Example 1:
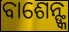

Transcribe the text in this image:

ବାଶେନ୍ଙ୍କ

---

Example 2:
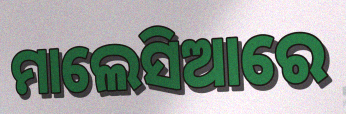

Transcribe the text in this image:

ମାଲେସିଆରେ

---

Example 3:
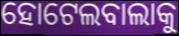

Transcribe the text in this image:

ହୋଟେଲବାଲାକୁ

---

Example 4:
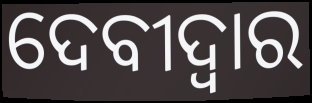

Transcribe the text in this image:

ଦେବୀଦ୍ବାର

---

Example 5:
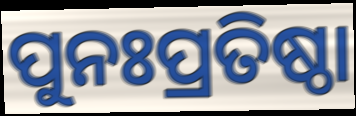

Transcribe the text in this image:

ପୁନଃପ୍ରତିଷ୍ଠା